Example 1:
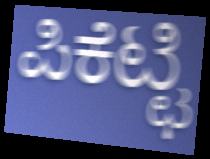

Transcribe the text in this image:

ಪಿಕೆಟ್ಟಿ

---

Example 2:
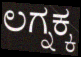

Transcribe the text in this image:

ಲಗ್ನಕ್ಕ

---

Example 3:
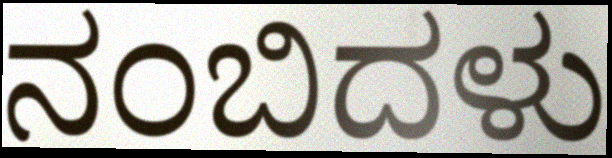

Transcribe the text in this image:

ನಂಬಿದಳು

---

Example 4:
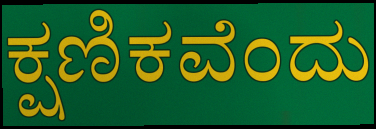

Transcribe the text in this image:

ಕ್ಷಣಿಕವೆಂದು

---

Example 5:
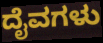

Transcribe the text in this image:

ದೈವಗಳು